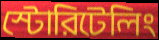
স্টোরিটেলিং